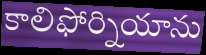
కాలిఫోర్నియాను